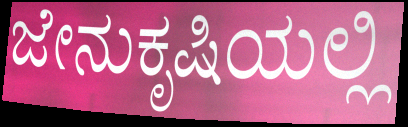
ಜೇನುಕೃಷಿಯಲ್ಲಿ